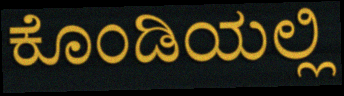
ಕೊಂಡಿಯಲ್ಲಿ